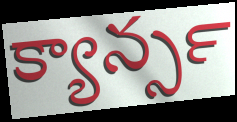
క్యాన్సర్‍